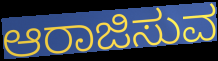
ಆರಾಜಿಸುವ